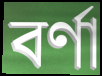
বর্ণা